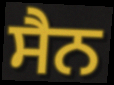
ਸੈਨ